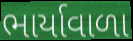
ભાર્યાવાળા